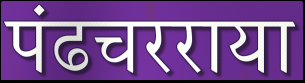
पंढचरराया